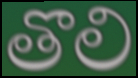
తొలి